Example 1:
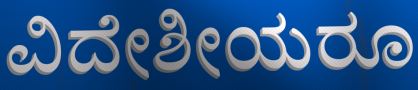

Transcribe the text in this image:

ವಿದೇಶೀಯರೂ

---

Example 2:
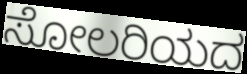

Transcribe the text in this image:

ಸೋಲರಿಯದ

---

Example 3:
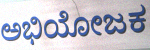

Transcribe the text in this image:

ಅಭಿಯೋಜಕ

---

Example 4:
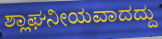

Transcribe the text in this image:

ಶ್ಲಾಘನೀಯವಾದದ್ದು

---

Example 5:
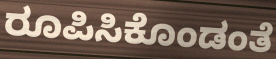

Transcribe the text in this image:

ರೂಪಿಸಿಕೊಂಡಂತೆ